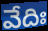
వేదిః